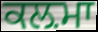
ਕਲ਼ਮਾ